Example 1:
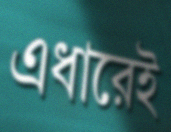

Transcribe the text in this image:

এধারেই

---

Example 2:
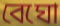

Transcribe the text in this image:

বেঘো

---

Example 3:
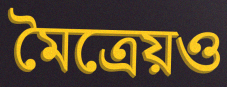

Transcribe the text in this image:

মৈত্রেয়ও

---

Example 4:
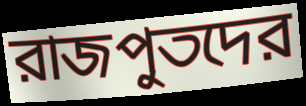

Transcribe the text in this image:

রাজপুতদের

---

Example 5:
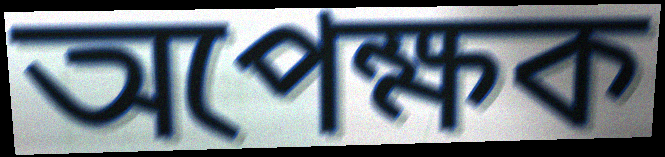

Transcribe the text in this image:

অপেক্ষক